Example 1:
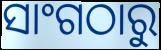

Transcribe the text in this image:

ସାଂଗଠାରୁ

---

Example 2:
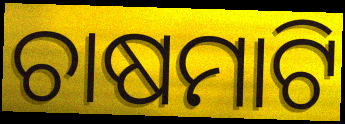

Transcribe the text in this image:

ଚାଷମାଟି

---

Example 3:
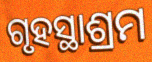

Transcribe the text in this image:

ଗୃହସ୍ଥାଶ୍ରମ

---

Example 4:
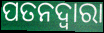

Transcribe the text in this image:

ପତନଦ୍ଵାରା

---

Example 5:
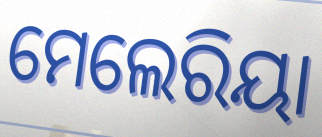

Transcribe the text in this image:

ମେଲେରିୟା